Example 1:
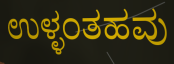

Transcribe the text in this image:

ಉಳ್ಳಂತಹವು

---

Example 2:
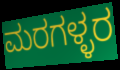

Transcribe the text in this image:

ಮರಗಳ್ಳರ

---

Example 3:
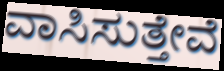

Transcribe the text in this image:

ವಾಸಿಸುತ್ತೇವೆ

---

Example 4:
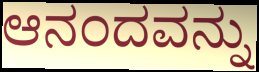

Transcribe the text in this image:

ಆನಂದವನ್ನು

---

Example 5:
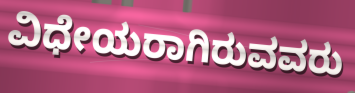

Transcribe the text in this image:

ವಿಧೇಯರಾಗಿರುವವರು